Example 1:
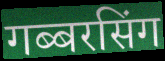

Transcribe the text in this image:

गब्बरसिंग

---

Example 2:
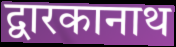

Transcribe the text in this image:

द्वारकानाथ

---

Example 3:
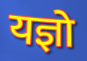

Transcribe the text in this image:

यज्ञो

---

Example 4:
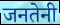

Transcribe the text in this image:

जनतेनी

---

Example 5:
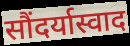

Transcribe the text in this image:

सौंदर्यास्वाद